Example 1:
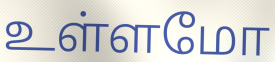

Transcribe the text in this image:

உள்ளமோ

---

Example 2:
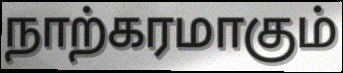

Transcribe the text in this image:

நாற்கரமாகும்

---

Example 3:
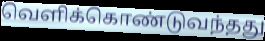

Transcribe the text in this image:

வெளிக்கொண்டுவந்தது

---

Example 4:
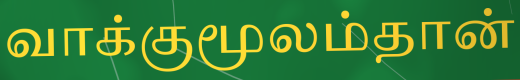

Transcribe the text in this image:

வாக்குமூலம்தான்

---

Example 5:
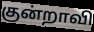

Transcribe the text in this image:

குன்றாவி